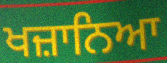
ਖਜ਼ਾਨਿਆ